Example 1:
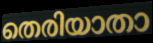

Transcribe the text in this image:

തെരിയാതാ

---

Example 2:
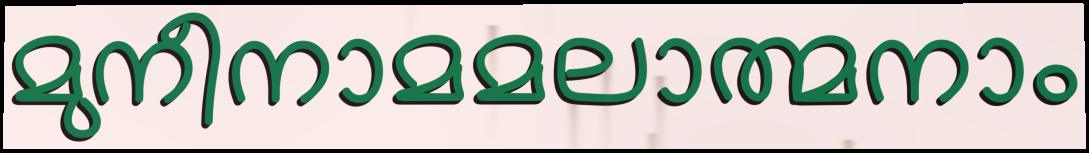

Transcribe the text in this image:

മുനീനാമമലാത്മനാം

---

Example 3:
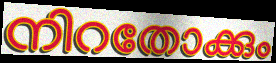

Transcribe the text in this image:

നിറതോക്കും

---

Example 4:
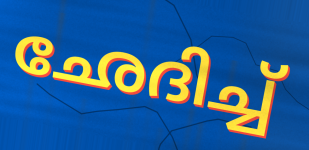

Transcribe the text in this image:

ഛേദിച്ച്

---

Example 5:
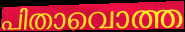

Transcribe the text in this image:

പിതാവൊത്ത